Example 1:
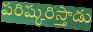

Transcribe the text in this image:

పరిష్కరిస్తాడు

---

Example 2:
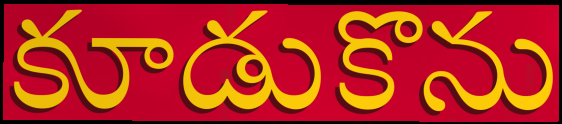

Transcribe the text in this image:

కూడుకొను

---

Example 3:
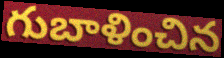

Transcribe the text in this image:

గుబాళించిన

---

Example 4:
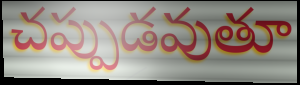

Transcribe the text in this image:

చప్పుడవుతూ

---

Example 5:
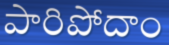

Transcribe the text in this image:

పారిపోదాం